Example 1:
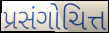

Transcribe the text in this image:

પ્રસંગોચિત્ત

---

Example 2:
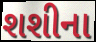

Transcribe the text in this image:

શશીના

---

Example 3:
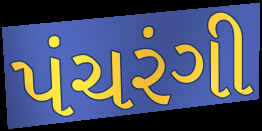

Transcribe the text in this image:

પંચરંગી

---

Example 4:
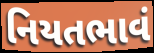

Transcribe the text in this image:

નિયતભાવં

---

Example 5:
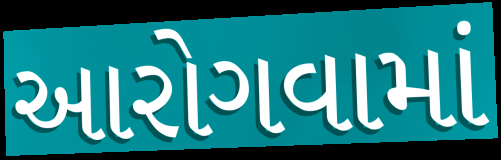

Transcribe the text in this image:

આરોગવામાં